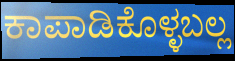
ಕಾಪಾಡಿಕೊಳ್ಳಬಲ್ಲ